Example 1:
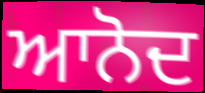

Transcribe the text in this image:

ਆਨੋਦ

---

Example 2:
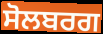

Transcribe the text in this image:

ਸੋਲਬਰਗ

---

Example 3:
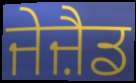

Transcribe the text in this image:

ਜੇਜ਼ੈਡ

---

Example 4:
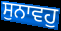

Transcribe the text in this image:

ਸੁਨਾਵਹੁ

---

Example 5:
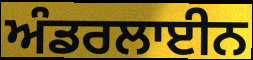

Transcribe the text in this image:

ਅੰਡਰਲਾਈਨ